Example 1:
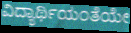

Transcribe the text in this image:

ವಿದ್ಯಾರ್ಥಿಯಂತೆಯೇ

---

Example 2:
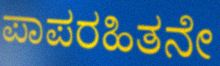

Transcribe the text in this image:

ಪಾಪರಹಿತನೇ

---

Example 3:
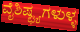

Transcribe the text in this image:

ವೈಶಿಷ್ಟ್ಯಗಳುಳ್ಳ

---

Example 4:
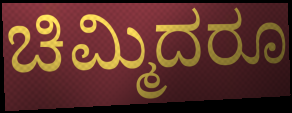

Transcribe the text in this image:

ಚಿಮ್ಮಿದರೂ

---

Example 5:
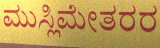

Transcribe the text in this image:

ಮುಸ್ಲಿಮೇತರರ